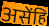
असेंहि